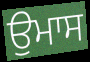
ਉਮਾਸ